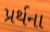
પ્રર્થના